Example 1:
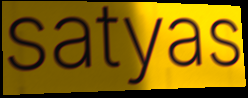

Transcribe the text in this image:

satyas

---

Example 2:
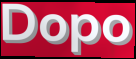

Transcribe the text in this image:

Dopo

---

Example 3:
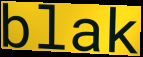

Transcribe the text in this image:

blak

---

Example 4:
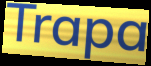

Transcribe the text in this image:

Trapa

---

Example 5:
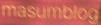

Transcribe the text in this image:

masumblog